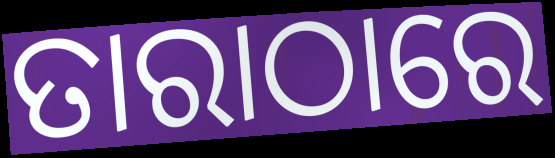
ତାରାଠାରେ